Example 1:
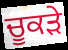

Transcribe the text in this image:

ਚੂਕੜੇ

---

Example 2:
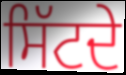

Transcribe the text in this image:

ਸਿੱਟਦੇ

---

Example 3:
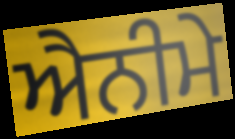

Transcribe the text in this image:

ਐਨੀਮੇ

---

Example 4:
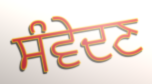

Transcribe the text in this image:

ਸੰਵੇਦਣ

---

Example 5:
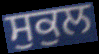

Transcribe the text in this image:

ਸੁਕੁਲ